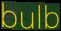
bulb